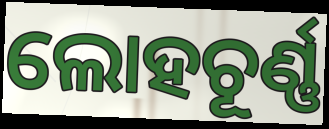
ଲୋହଚୂର୍ଣ୍ଣ